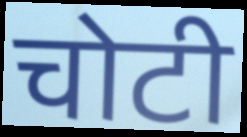
चोटी